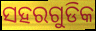
ସହରଗୁଡିକ